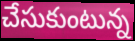
చేసుకుంటున్న